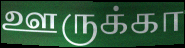
ஊருக்கா